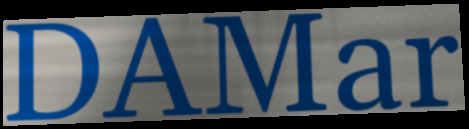
DAMar